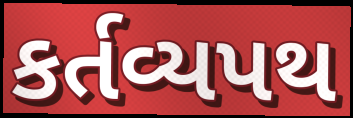
કર્તવ્યપથ